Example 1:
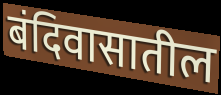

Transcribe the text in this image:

बंदिवासातील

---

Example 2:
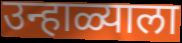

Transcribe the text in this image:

उन्हाळ्याला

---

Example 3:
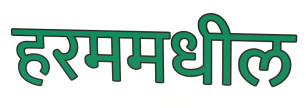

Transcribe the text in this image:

हरममधील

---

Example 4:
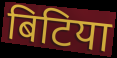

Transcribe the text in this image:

बिटिया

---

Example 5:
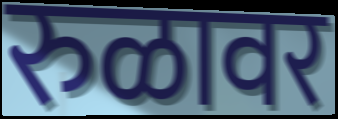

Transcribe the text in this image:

रुळावर